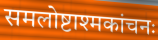
समलोष्टाश्मकांचनः